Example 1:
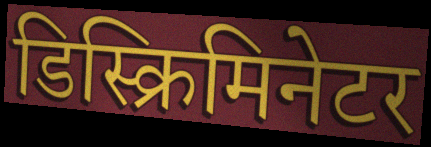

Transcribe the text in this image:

डिस्क्रिमिनेटर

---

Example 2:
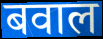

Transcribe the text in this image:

बवाल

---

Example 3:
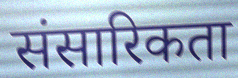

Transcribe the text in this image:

संसारिकता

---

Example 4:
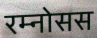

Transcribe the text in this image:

रम्नोसस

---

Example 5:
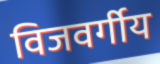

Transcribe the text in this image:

विजवर्गीय